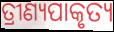
ତ୍ରୀଣ୍ୟପାକୃତ୍ୟ